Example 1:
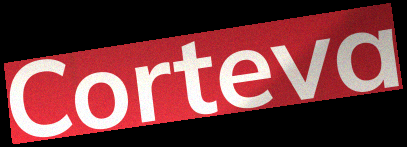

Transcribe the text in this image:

Corteva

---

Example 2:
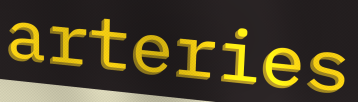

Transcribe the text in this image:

arteries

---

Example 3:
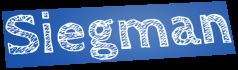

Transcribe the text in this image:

Siegman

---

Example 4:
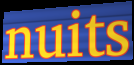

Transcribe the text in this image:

nuits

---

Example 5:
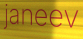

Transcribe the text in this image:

janeev